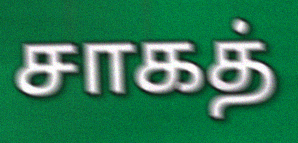
சாகத்